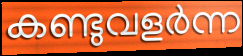
കണ്ടുവളർന്ന